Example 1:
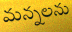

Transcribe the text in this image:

మన్నలను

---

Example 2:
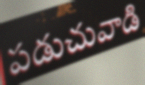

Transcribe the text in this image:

పడుచువాడి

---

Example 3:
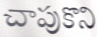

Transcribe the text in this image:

చాపుకొని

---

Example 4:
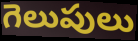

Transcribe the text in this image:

గెలుపులు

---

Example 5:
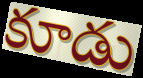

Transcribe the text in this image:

కూడు